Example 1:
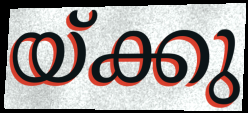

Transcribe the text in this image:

യ്ക്കു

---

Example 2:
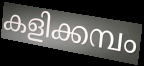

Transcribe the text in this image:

കളിക്കമ്പം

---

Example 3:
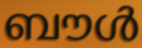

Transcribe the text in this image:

ബൗൾ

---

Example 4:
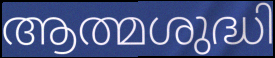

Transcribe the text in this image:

ആത്മശുദ്ധി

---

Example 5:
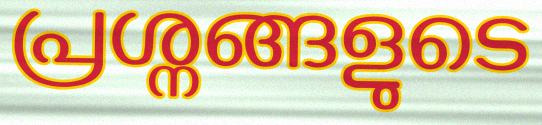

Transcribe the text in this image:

പ്രശ്നങ്ങളുടെ